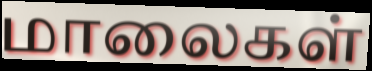
மாலைகள்